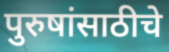
पुरुषांसाठीचे